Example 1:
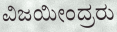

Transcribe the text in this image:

ವಿಜಯೀಂದ್ರರು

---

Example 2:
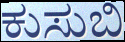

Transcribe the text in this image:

ಕುಸುಬಿ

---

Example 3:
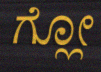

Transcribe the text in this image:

ಗ್ಲೋ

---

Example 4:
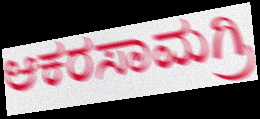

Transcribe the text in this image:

ಆಕರಸಾಮಗ್ರಿ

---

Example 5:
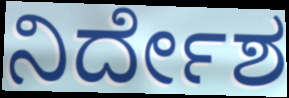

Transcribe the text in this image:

ನಿರ್ದೇಶ